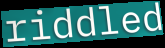
riddled